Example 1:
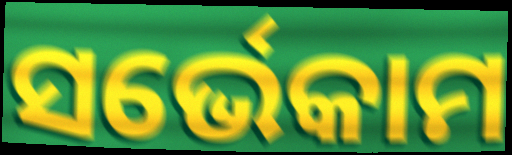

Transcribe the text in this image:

ସର୍ଭେକାମ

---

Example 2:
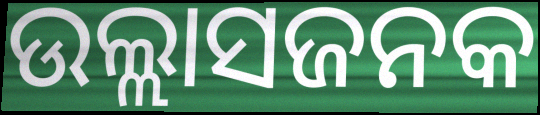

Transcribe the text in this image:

ଉଲ୍ଲାସଜନକ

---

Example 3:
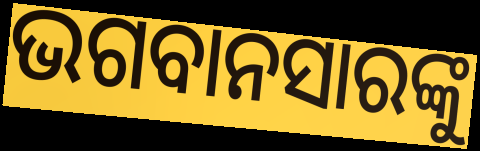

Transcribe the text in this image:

ଭଗବାନସାରଙ୍କୁ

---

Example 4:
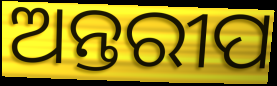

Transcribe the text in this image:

ଅନ୍ତରୀପ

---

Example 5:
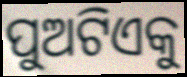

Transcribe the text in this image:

ପୁଅଟିଏକୁ